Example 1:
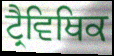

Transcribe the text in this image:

ਟ੍ਰੈਵਿਥਿਕ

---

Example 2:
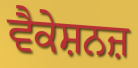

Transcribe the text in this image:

ਵੈਕੇਸ਼ਨਜ਼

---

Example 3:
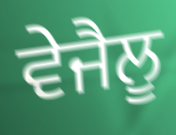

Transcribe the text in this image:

ਵੇਜੈਲੂ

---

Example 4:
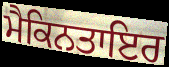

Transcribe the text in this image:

ਮੈਕਿਨਤਾਇਰ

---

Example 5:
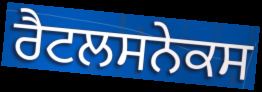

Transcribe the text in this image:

ਰੈਟਲਸਨੇਕਸ